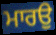
ਮਾਰਉ